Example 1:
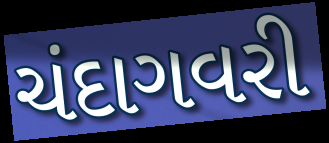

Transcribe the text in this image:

ચંદાગવરી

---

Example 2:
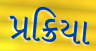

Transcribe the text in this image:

પ્રક્રિયા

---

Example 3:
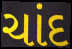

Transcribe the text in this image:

ચાંદ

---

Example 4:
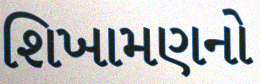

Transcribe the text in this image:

શિખામણનો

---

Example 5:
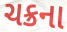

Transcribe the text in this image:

ચક્રના